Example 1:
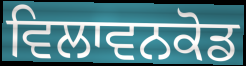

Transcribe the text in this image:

ਵਿਲਾਵਨਕੋਡ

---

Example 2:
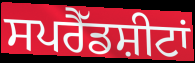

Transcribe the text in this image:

ਸਪਰੈੱਡਸ਼ੀਟਾਂ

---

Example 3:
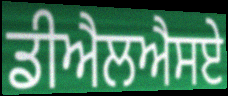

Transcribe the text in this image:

ਡੀਐਲਐਸਏ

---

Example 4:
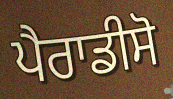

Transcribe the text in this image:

ਪੈਰਾਡੀਸੋ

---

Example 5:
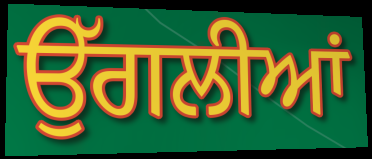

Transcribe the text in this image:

ਉੱਗਲੀਆਂ